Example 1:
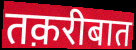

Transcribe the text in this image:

तक़रीबात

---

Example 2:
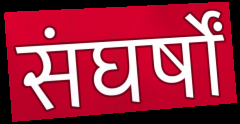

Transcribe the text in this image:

संघर्षों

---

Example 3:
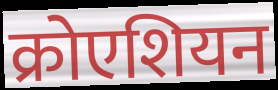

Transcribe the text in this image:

क्रोएशियन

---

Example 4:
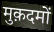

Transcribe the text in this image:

मुक़दमों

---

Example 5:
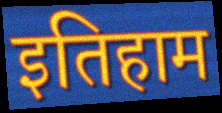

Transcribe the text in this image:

इतिहाम